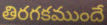
తిరగకముందే